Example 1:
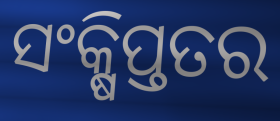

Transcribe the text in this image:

ସଂକ୍ଷିପ୍ତତର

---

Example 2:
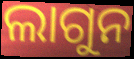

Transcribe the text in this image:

ଲାଗୁନ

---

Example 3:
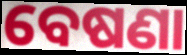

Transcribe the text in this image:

ବେଷଣା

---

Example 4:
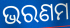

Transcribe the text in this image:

ଭରଣମ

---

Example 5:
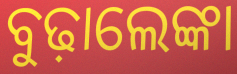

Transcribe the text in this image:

ବୁଢ଼ାଲେଙ୍କା